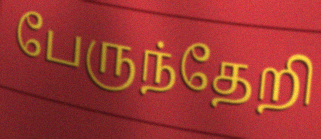
பேருந்தேறி